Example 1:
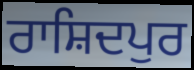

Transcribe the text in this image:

ਰਾਸ਼ਿਦਪੁਰ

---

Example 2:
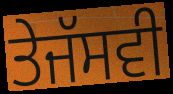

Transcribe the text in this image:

ਤੇਜੱਸਵੀ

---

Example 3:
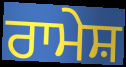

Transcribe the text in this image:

ਰਾਮੇਸ਼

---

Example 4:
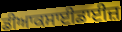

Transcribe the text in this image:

ਡੀਆਕਸਾਈਡਾਈਜ਼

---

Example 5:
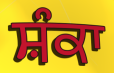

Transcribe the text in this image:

ਸ਼ੰਕਾ